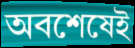
অবশেষেই